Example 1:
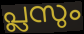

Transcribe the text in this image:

പ്ലസും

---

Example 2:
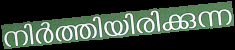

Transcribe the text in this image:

നിർത്തിയിരിക്കുന്ന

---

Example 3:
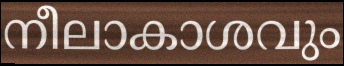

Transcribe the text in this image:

നീലാകാശവും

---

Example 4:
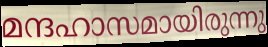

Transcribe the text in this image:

മന്ദഹാസമായിരുന്നു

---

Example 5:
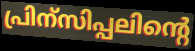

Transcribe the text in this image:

പ്രിന്സിപ്പലിന്റെ